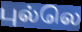
புல்லெ